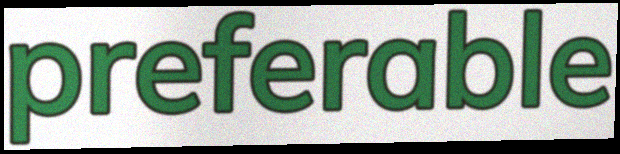
preferable